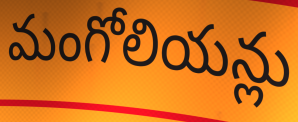
మంగోలియన్లు